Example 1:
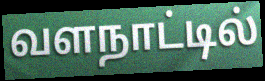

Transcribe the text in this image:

வளநாட்டில்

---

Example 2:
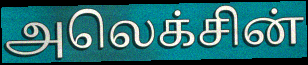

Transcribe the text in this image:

அலெக்சின்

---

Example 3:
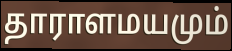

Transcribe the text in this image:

தாராளமயமும்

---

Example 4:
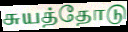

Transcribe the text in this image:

சுயத்தோடு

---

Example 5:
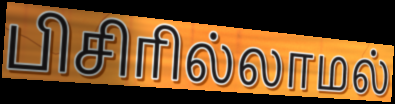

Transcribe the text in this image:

பிசிரில்லாமல்